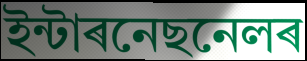
ইন্টাৰনেছনেলৰ